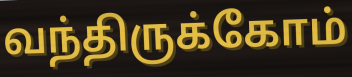
வந்திருக்கோம்